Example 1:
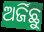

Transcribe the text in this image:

ଅର୍ଜିଛୁ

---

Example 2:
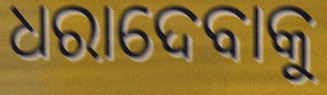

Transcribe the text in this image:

ଧରାଦେବାକୁ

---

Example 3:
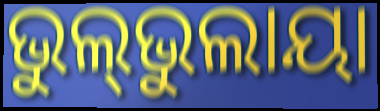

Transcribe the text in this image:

ଭୁଲ୍‌ଭୁଲାୟା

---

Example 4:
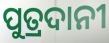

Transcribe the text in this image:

ପୁତ୍ରଦାନୀ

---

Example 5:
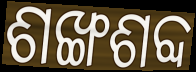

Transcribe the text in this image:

ଶଙ୍ଖଶବ୍ଦ